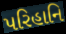
પરિહાનિ